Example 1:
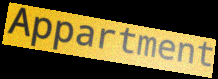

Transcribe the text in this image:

Appartment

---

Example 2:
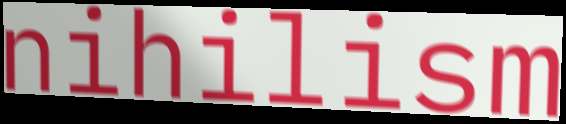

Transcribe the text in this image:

nihilism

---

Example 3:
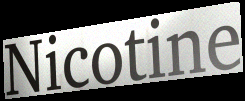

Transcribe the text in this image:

Nicotine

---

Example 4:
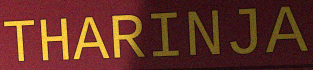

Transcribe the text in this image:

THARINJA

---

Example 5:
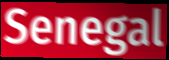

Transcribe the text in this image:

Senegal